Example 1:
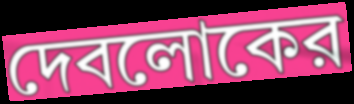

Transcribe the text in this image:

দেবলোকের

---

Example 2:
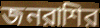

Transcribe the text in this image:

জনরাশির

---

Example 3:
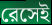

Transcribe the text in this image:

রেসেই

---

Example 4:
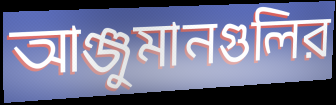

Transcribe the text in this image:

আঞ্জুমানগুলির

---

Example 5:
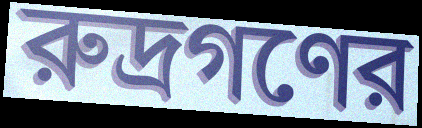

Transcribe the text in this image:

রুদ্রগণের